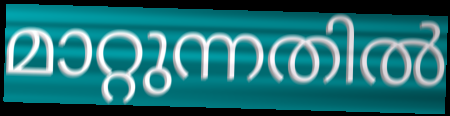
മാറ്റുന്നതിൽ